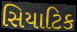
સિયાટિક